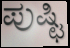
ಪುಷ್ಟಿ